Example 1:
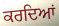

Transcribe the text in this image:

ਕਰਦਿਆਂ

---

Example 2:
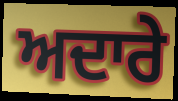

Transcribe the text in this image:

ਅਦਾਰੇ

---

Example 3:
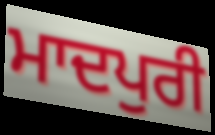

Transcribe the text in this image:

ਮਾਦਪੁਰੀ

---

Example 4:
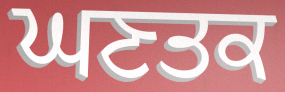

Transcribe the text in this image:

ਘਣਤਕ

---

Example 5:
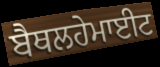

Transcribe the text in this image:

ਬੈਥਲਹੇਮਾਈਟ